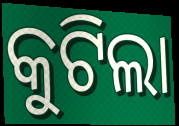
କୁଟିଲା